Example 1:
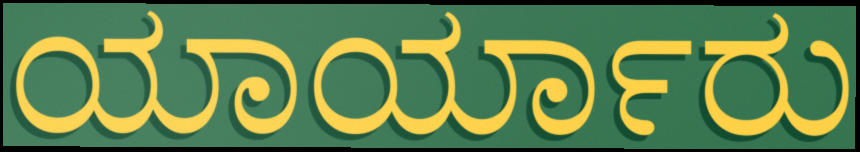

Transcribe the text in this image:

ಯಾರ್ಯಾರು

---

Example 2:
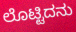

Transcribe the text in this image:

ಲೊಟ್ಟಿದನು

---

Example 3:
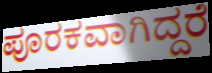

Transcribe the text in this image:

ಪೂರಕವಾಗಿದ್ದರೆ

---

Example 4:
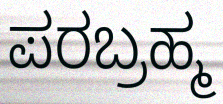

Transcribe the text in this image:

ಪರಬ್ರಹ್ಮ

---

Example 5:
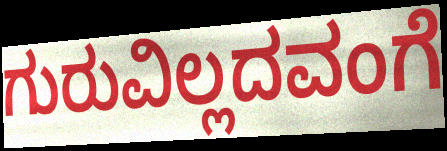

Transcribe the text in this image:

ಗುರುವಿಲ್ಲದವಂಗೆ